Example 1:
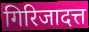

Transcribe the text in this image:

गिरिजादत्त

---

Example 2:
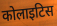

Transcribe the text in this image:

कोलाइटिस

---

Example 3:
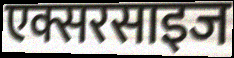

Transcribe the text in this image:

एक्सरसाइज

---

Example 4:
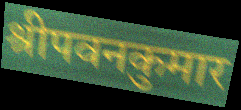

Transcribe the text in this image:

श्रीपवनकुमार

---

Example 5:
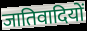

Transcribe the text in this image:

जातिवादियों